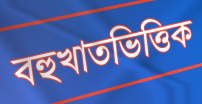
বহুখাতভিত্তিক